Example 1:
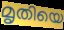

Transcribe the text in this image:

മൃതിയെ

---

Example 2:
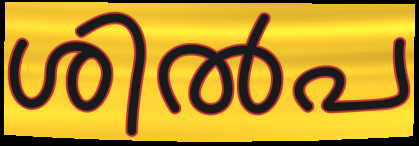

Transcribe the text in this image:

ശിൽപ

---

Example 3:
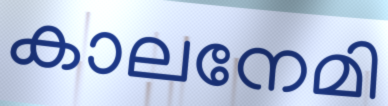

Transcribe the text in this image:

കാലനേമി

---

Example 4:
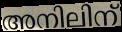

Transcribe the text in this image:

അനിലിന്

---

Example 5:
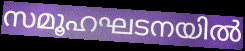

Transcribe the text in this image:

സമൂഹഘടനയിൽ